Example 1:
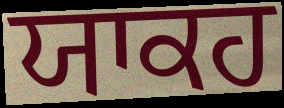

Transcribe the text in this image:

ਯਾਕਹ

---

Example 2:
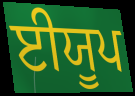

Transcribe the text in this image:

ਈਯੂਪ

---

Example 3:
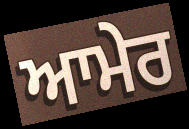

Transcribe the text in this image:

ਆਮੇਰ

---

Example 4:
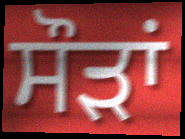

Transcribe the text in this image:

ਸੌੜਾਂ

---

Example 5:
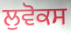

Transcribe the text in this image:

ਲੁਵੋਕਸ